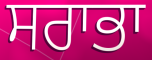
ਸਰਾਭਾ